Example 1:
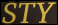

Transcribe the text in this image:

STY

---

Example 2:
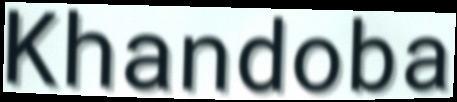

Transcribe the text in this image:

Khandoba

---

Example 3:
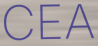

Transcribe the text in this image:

CEA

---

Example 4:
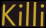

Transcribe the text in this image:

Killi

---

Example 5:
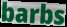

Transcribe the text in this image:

barbs